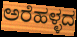
ಅರೆಹಳ್ಳದ